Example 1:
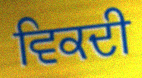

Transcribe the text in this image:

ਵਿਕਦੀ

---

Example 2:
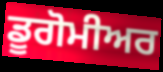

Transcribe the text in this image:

ਡੂਗੋਮੀਅਰ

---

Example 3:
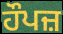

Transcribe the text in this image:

ਹੌਪਜ਼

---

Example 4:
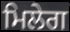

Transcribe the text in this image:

ਮਿਲੇਗ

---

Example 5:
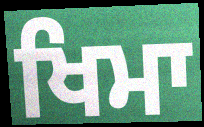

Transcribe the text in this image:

ਖਿਮਾ